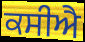
ਕਸੀਐ